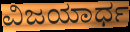
ವಿಜಯಾರ್ಧ